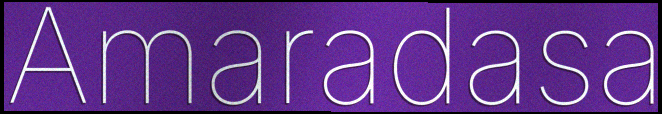
Amaradasa